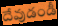
దేవుడండీ